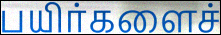
பயிர்களைச்